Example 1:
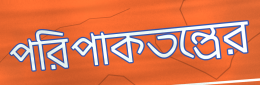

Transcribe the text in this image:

পরিপাকতন্ত্রের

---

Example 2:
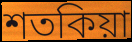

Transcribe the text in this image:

শতকিয়া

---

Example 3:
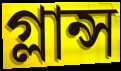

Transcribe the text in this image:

গ্লান্স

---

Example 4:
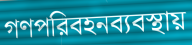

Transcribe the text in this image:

গণপরিবহনব্যবস্থায়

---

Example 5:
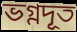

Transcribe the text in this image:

ভগ্নদূত